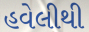
હવેલીથી